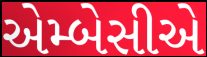
એમ્બેસીએ